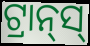
ଟ୍ରାନ୍‍ସ୍